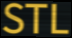
STL